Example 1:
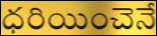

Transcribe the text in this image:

ధరియించెనే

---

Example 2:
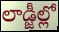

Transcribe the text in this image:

లాడ్జీల్లో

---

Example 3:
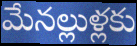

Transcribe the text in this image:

మేనల్లుళ్లకు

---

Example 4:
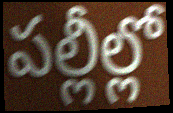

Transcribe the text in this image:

పల్లీల్లో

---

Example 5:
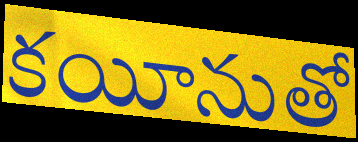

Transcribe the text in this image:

కయీనుతో